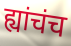
ह्यांचंच